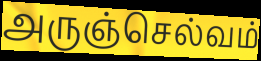
அருஞ்செல்வம்